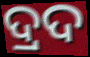
ଦ୍ରଦ